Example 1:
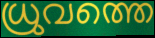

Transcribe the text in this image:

ധ്രുവത്തെ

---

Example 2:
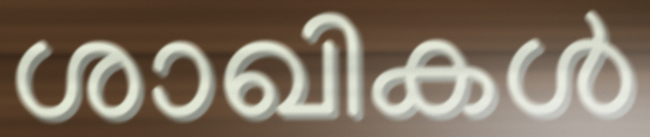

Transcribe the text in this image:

ശാഖികൾ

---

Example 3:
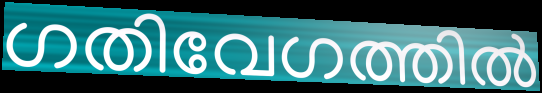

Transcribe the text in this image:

ഗതിവേഗത്തിൽ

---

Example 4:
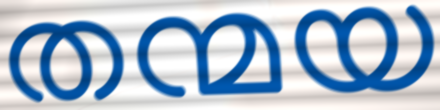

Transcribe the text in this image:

തന്മയ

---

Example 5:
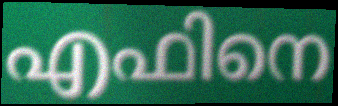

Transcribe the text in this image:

എഫിനെ